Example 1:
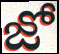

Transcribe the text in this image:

జో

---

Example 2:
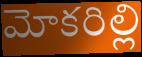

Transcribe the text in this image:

మోకరిల్లి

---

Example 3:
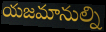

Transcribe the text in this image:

యజమానుల్ని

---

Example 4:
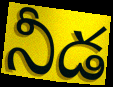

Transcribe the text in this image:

నీడ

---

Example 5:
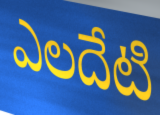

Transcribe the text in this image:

ఎలదేటి